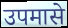
उपमासे